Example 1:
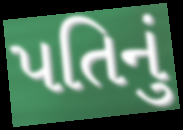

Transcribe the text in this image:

પતિનું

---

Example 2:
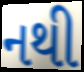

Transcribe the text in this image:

નથી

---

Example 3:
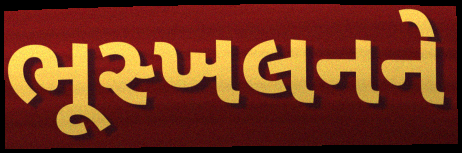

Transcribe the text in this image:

ભૂસ્ખલનને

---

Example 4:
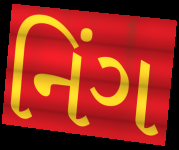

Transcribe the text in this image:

નિંગ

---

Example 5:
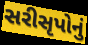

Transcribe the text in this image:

સરીસૃપોનું